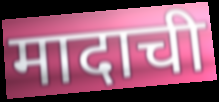
मादाची